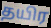
தயிர